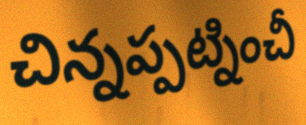
చిన్నప్పట్నించీ